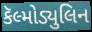
કૅલ્મોડ્યુલિન